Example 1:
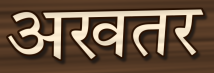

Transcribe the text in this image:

अखतर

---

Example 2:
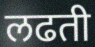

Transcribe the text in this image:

लढती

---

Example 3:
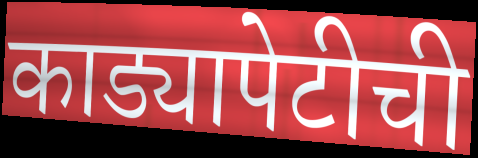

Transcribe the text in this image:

काड्यापेटीची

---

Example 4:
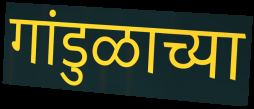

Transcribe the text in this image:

गांडुळाच्या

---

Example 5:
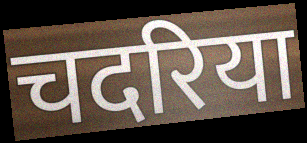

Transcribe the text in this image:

चदरिया